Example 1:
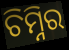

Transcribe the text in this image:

ଚିମ୍ନିର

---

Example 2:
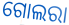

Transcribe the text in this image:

ଗୋଲରା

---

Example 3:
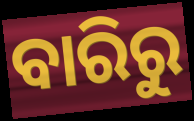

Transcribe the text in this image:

ବାରିରୁ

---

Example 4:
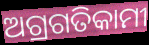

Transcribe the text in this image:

ଅଗ୍ରଗତିକାମୀ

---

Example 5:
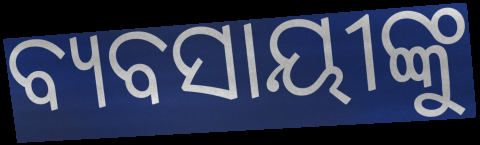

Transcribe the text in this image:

ବ୍ୟବସାୟୀଙ୍କୁ